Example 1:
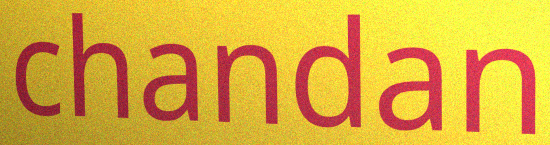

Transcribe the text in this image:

chandan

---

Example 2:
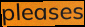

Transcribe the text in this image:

pleases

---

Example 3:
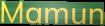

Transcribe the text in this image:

Mamun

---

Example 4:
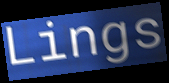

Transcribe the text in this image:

Lings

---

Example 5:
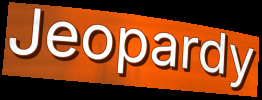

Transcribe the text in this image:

Jeopardy